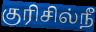
குரிசில்நீ